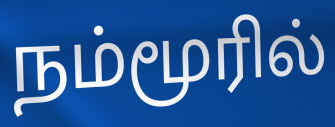
நம்மூரில்